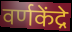
वर्णकेंद्रे